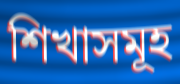
শিখাসমূহ